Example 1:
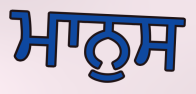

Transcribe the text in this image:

ਮਾਨੁਸ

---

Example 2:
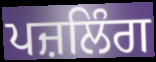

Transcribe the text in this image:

ਪਜ਼ਲਿੰਗ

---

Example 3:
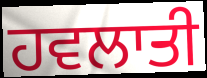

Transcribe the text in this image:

ਹਵਲਾਤੀ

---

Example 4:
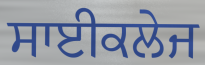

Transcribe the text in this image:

ਸਾਈਕਲੇਜ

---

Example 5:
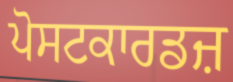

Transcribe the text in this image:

ਪੋਸਟਕਾਰਡਜ਼